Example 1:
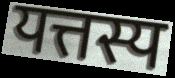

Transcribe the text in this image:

यत्तस्य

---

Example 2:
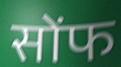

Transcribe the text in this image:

सोंफ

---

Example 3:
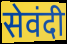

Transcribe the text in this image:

सेवंदी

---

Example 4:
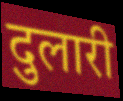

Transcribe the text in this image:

दुलारी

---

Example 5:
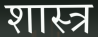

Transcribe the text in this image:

शास्त्र